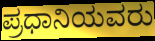
ಪ್ರಧಾನಿಯವರು